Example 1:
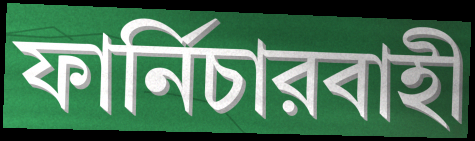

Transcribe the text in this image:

ফার্নিচারবাহী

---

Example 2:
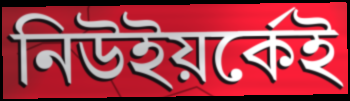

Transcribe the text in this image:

নিউইয়র্কেই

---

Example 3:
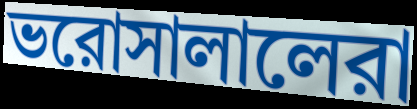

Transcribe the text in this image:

ভরোসালালেরা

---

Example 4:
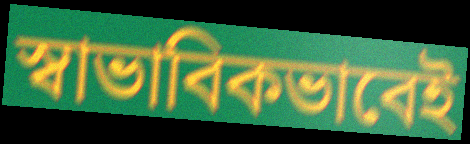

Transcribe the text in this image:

স্বাভাবিকভাবেই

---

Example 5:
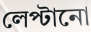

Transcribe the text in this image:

লেপ্টানো